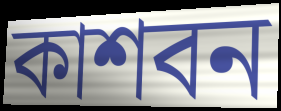
কাশবন